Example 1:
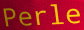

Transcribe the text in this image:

Perle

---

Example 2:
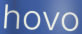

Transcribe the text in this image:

hovo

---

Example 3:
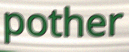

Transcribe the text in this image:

pother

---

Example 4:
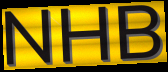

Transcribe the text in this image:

NHB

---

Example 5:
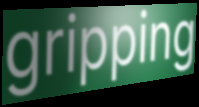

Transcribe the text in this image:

gripping